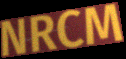
NRCM